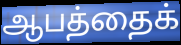
ஆபத்தைக்